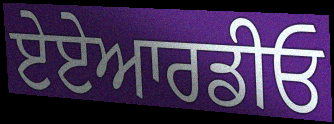
ਏਏਆਰਡੀਓ